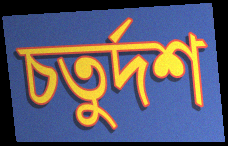
চতুর্দশ